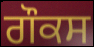
ਗੌਕਸ